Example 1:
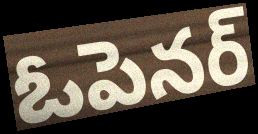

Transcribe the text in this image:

ఓపెనర్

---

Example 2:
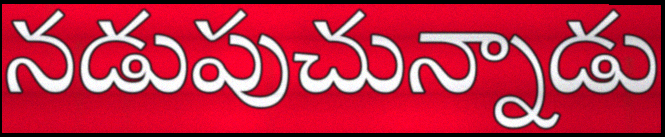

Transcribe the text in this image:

నడుపుచున్నాడు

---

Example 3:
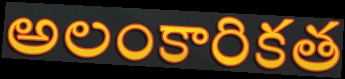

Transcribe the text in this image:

అలంకారికత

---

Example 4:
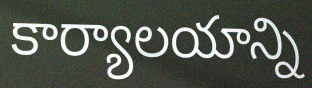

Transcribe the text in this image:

కార్యాలయాన్ని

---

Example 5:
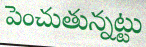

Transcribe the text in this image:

పెంచుతున్నట్టు